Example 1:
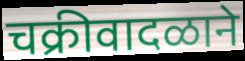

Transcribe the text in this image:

चक्रीवादळाने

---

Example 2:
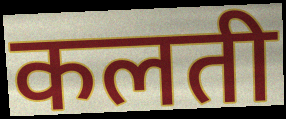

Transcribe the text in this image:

कलती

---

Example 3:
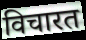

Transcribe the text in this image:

विचारत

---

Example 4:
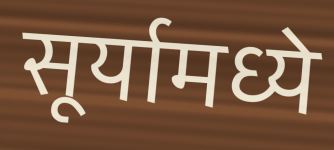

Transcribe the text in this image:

सूर्यामध्ये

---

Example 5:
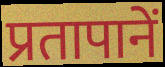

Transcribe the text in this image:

प्रतापानें